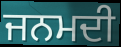
ਜਨਮਦੀ